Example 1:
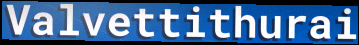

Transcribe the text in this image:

Valvettithurai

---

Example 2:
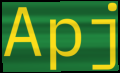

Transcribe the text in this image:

Apj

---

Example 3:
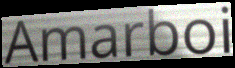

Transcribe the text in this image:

Amarboi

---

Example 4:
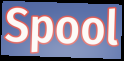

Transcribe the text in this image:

Spool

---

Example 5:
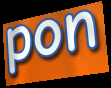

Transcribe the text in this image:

pon